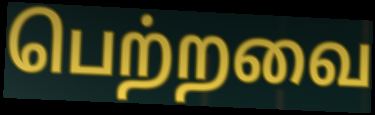
பெற்றவை